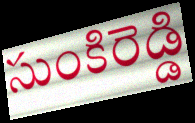
సుంకిరెడ్డి